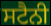
ਸਟੈਨੀ